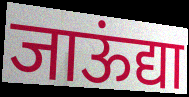
जाऊंद्या